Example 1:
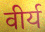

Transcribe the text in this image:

वीर्य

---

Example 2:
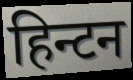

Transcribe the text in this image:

हिन्टन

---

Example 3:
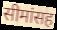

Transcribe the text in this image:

सीमांसह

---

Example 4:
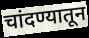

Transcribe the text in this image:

चांदण्यातून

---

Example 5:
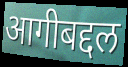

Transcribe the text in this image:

आगीबद्दल